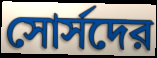
সোর্সদের